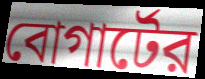
বোগার্টের